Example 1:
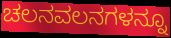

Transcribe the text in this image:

ಚಲನವಲನಗಳನ್ನೂ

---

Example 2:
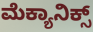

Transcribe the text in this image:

ಮೆಕ್ಯಾನಿಕ್ಸ್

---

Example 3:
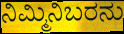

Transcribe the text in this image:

ನಿಮ್ಮಿನಿಬರನು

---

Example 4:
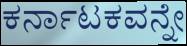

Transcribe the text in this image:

ಕರ್ನಾಟಕವನ್ನೇ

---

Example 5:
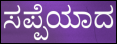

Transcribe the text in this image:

ಸಪ್ಪೆಯಾದ